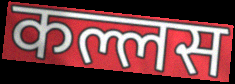
कल्लस